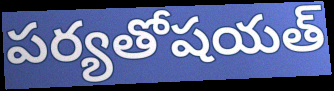
పర్యతోషయత్